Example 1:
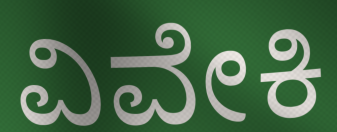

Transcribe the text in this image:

ವಿವೇಕಿ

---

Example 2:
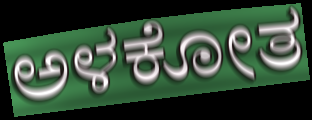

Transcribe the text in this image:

ಅಳಕೋತ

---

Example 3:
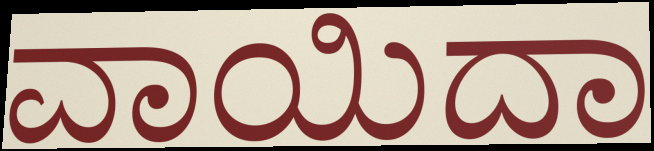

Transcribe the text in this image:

ವಾಯಿದಾ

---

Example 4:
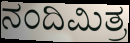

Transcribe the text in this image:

ನಂದಿಮಿತ್ರ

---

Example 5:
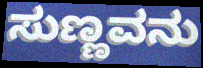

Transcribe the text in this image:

ಸುಣ್ಣವನು